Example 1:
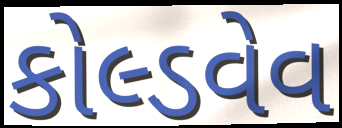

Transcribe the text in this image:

કોલ્ડવેવ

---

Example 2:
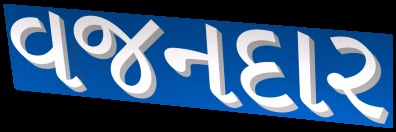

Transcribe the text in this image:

વજનદાર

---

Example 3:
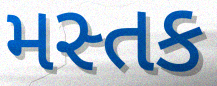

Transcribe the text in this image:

મસ્તક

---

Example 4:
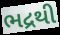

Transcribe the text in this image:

ભદ્રથી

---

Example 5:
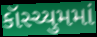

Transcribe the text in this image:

કૉસ્ચ્યુમમાં